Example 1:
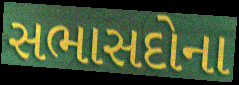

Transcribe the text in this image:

સભાસદોના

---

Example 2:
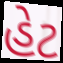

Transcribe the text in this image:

હેટ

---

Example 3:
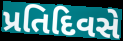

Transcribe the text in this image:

પ્રતિદિવસે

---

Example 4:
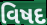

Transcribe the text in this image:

વિષદ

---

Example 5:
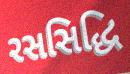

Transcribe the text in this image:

રસસિદ્ધિ